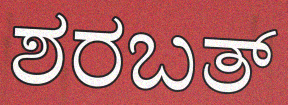
ಶರಬತ್